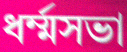
ধর্ম্মসভা